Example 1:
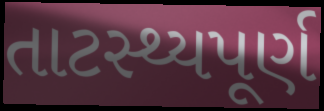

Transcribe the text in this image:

તાટસ્થ્યપૂર્ણ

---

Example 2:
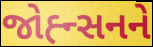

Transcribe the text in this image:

જોહ્ન્સનને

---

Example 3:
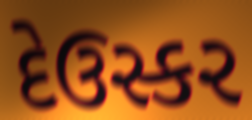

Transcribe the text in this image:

દેઉસ્કર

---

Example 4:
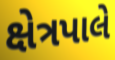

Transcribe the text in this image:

ક્ષેત્રપાલે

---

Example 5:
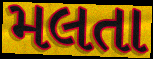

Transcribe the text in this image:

મલતા